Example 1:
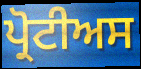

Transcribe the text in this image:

ਪ੍ਰੋਟੀਅਸ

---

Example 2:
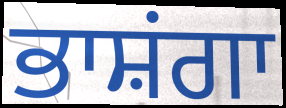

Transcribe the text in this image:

ਭਾਸ਼ਂਗਾ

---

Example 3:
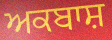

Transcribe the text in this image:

ਅਕਬਾਸ਼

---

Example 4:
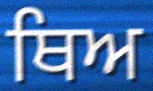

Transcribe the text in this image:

ਥਿਅ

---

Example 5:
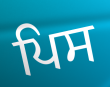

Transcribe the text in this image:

ਪਿਸ